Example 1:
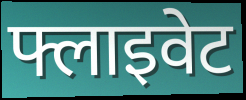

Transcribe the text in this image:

फ्लाइवेट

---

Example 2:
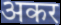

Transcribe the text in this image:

अकर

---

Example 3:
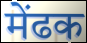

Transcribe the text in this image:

मेंढक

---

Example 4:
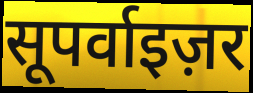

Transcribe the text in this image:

सूपर्वाइज़र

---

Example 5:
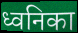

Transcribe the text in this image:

ध्वनिका